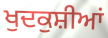
ਖੁਦਕੁਸ਼ੀਆਂ